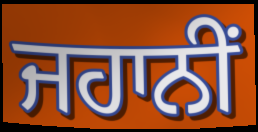
ਜਹਾਨੀਂ